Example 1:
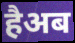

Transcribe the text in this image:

हैअब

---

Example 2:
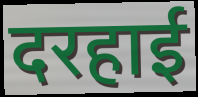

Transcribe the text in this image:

दरहाई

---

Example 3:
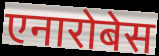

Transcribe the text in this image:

एनारोबेस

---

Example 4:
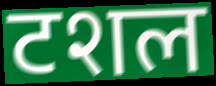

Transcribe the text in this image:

टशल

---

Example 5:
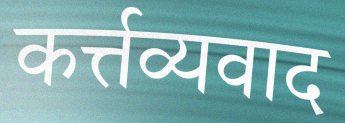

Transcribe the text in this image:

कर्त्तव्यवाद